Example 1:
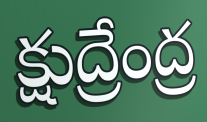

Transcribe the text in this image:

క్షుద్రేంద్ర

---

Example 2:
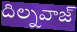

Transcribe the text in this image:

దిల్నవాజ్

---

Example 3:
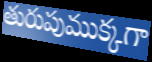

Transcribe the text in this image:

తురుపుముక్కగా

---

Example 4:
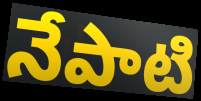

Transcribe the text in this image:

నేపాటి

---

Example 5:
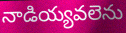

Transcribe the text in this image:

నాడియ్యవలెను